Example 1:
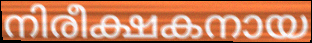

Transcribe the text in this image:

നിരീക്ഷകനായ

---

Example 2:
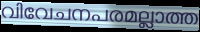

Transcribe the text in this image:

വിവേചനപരമല്ലാത്ത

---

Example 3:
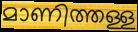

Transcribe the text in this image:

മാണിത്തള്ള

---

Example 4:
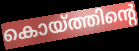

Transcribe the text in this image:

കൊയ്ത്തിന്റെ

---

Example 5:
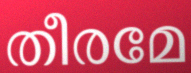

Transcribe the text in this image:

തീരമേ